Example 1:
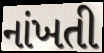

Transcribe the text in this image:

નાંખતી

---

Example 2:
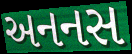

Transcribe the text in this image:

અનનસ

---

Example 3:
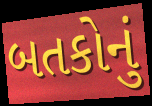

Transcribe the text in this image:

બતકોનું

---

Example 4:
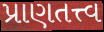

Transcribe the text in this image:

પ્રાણતત્ત્વ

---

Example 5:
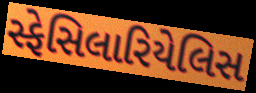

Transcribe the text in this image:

સ્ફેસિલારિયેલિસ